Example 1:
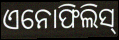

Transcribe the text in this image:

ଏନୋଫିଲିସ୍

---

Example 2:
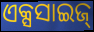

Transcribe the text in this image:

ଏକ୍ସସାଇଜ୍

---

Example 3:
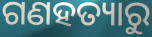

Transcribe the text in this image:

ଗଣହତ୍ୟାରୁ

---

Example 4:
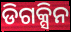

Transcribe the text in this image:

ଡିଗକ୍ସିନ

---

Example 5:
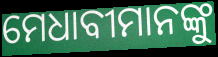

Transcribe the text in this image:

ମେଧାବୀମାନଙ୍କୁ